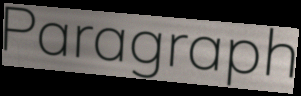
Paragraph